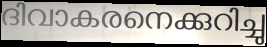
ദിവാകരനെക്കുറിച്ചു